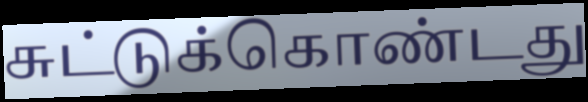
சுட்டுக்கொண்டது